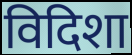
विदिशा